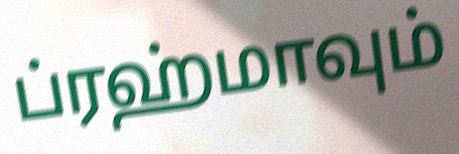
ப்ரஹ்மாவும்